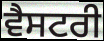
ਵੈਸਟਰੀ